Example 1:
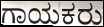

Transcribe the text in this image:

ಗಾಯಕರು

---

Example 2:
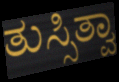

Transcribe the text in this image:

ತುಸ್ಸಿತ್ವಾ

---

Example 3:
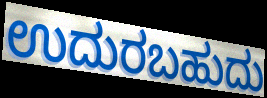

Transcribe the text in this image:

ಉದುರಬಹುದು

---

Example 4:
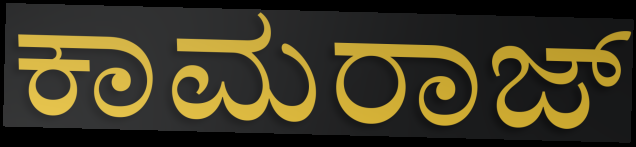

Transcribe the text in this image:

ಕಾಮರಾಜ್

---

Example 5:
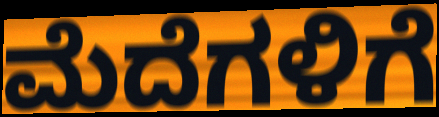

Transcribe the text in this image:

ಮೆದೆಗಳಿಗೆ